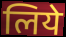
लिये